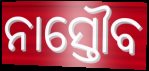
ନାସ୍ତୌବ